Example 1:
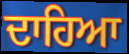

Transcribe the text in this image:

ਦਾਹਿਆ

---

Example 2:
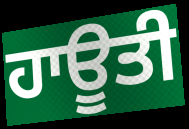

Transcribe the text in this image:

ਹਾਊਤੀ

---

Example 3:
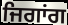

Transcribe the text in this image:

ਜਿਗਾਂਗ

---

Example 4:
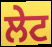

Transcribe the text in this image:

ਲੇਟ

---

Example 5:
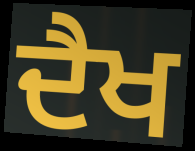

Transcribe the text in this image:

ਦੈਖ